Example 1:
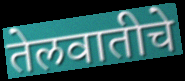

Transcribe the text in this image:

तेलवातीचे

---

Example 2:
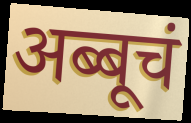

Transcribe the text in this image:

अब्बूचं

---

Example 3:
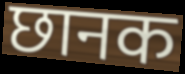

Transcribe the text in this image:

छानक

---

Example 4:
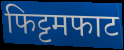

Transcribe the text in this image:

फिट्टमफाट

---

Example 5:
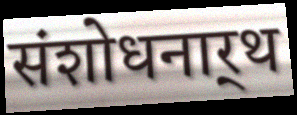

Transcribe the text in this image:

संशोधनार्थ